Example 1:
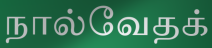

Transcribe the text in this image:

நால்வேதக்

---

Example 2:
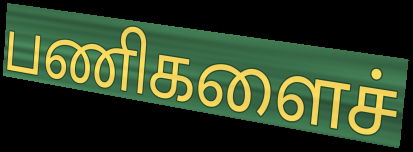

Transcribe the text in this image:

பணிகளைச்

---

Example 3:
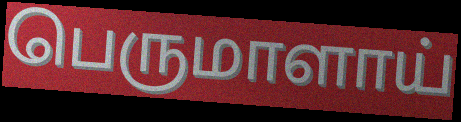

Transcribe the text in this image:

பெருமாளாய்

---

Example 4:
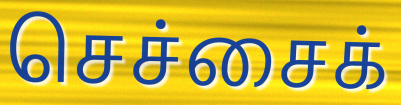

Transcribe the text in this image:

செச்சைக்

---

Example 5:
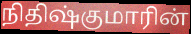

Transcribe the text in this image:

நிதிஷ்குமாரின்